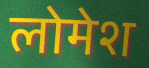
लोमेश